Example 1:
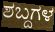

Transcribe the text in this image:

ಶಬ್ದಗಳ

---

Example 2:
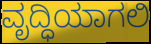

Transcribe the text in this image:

ವೃದ್ಧಿಯಾಗಲಿ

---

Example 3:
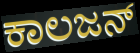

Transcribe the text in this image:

ಕಾಲಜನ್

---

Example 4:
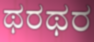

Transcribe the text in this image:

ಥರಥರ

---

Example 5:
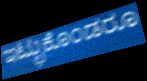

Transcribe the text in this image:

ಇಟ್ಟುಕೊಂಡರೂ